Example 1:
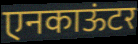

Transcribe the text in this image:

एनकाऊंटर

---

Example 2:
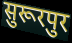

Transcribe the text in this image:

सुरूरपुर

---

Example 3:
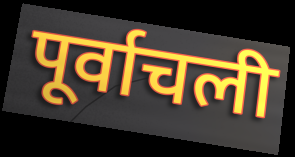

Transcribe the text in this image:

पूर्वाचली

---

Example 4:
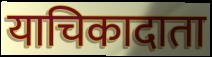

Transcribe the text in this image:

याचिकादाता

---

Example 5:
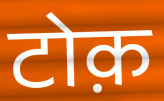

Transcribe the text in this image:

टोक़